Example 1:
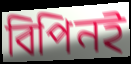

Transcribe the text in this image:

বিপিনই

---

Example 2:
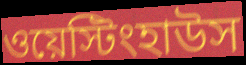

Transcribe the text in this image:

ওয়েস্টিংহাউস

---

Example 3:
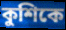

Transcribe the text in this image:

কুশিকে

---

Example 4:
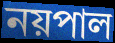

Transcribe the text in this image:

নয়পাল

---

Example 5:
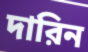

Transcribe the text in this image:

দারিন